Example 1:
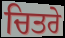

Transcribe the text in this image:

ਚਿਤਰੇ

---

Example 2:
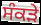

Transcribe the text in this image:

ਸੰਕੜੇ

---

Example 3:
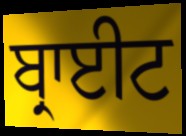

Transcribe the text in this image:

ਬ੍ਰਾਈਟ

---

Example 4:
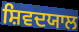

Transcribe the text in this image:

ਸ਼ਿਵਦਯਾਲ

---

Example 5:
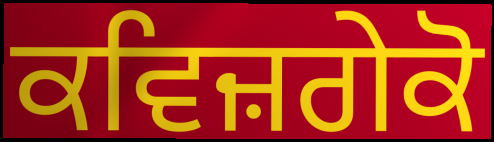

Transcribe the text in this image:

ਕਵਿਜ਼ਗੇਕੋ